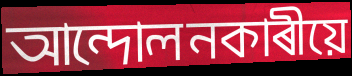
আন্দোলনকাৰীয়ে